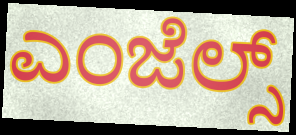
ಎಂಜೆಲ್ಸ್